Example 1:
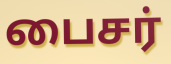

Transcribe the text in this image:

பைசர்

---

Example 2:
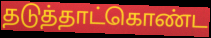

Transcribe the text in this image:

தடுத்தாட்கொண்ட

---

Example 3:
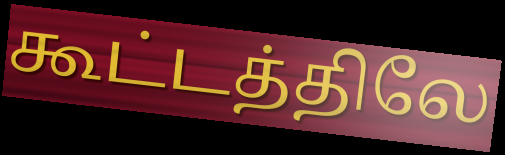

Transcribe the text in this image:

கூட்டத்திலே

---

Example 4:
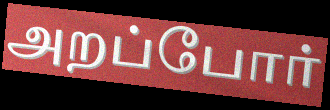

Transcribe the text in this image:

அறப்போர்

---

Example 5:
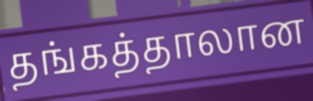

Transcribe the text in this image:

தங்கத்தாலான